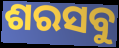
ଶରସବୁ